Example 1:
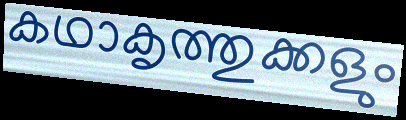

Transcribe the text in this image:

കഥാകൃത്തുക്കളും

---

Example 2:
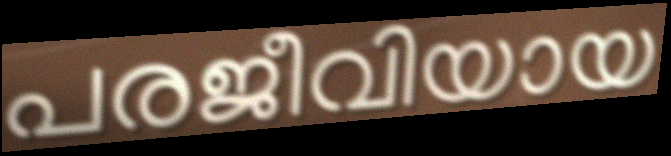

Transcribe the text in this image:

പരജീവിയായ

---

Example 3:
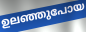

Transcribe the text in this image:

ഉലഞ്ഞുപോയ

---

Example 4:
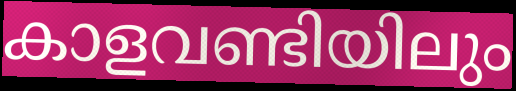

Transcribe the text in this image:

കാളവണ്ടിയിലും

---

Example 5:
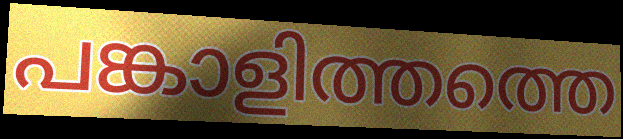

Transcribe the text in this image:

പങ്കാളിത്തത്തെ